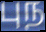
புந